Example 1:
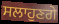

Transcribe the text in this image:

ਸਲਾਹੁਣਗੇ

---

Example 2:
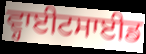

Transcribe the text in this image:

ਵ੍ਹਾਈਟਸਾਈਡ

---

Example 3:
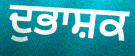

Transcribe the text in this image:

ਦੁਭਾਸ਼ਕ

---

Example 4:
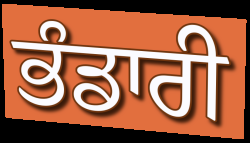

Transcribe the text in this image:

ਭੰਡਾਰੀ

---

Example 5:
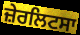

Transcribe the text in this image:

ਜ਼ੇਰਲਿਟਸਾ